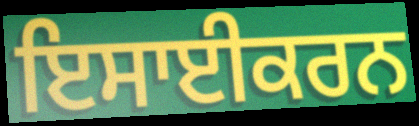
ਇਸਾਈਕਰਨ